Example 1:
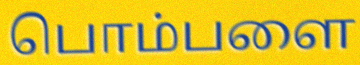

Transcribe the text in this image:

பொம்பளை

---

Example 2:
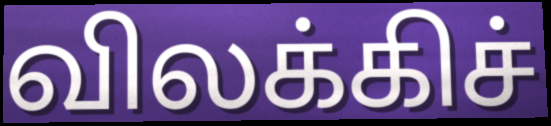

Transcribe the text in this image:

விலக்கிச்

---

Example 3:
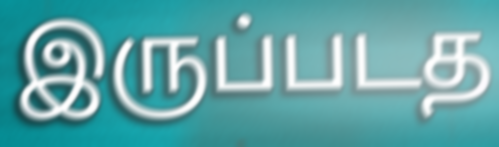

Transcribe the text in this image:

இருப்படத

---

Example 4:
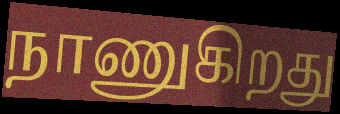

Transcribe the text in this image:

நாணுகிறது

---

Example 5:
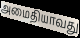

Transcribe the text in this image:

அமைதியாவது